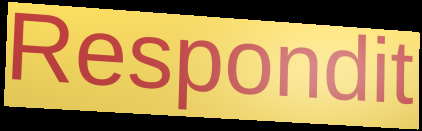
Respondit